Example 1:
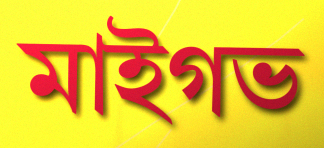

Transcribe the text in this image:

মাইগভ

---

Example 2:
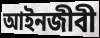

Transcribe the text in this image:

আইনজীবী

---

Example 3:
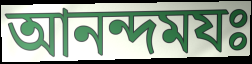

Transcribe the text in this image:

আনন্দমযঃ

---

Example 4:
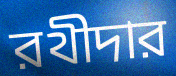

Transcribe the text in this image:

রথীদার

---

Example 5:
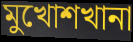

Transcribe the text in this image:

মুখোশখানা